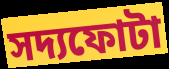
সদ্যফোটা